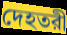
দেহতরী